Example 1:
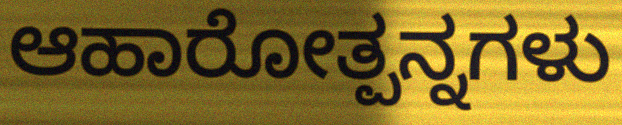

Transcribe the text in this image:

ಆಹಾರೋತ್ಪನ್ನಗಳು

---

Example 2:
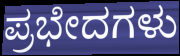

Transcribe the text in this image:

ಪ್ರಭೇದಗಳು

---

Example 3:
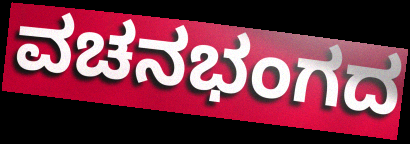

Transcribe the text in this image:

ವಚನಭಂಗದ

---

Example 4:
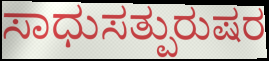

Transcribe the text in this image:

ಸಾಧುಸತ್ಪುರುಷರ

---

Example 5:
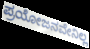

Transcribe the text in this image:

ಪ್ರಯೋಜನವೇನಿಲ್ಲ